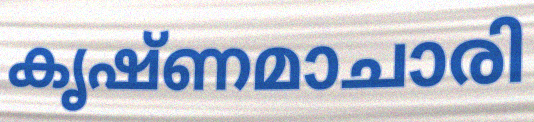
കൃഷ്ണമാചാരി